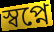
স্বপ্নে